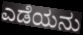
ಎಡೆಯನು